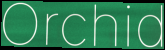
Orchid